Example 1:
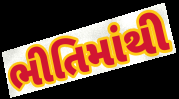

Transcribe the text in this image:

ભીતિમાંથી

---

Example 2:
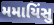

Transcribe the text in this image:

મમાયિંસુ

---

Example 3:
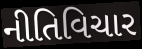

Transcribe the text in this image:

નીતિવિચાર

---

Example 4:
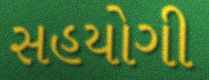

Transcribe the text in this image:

સહયોગી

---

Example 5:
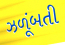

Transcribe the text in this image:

ઝળૂંબતી